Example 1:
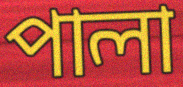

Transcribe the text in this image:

পালা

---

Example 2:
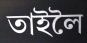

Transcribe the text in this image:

তাইলৈ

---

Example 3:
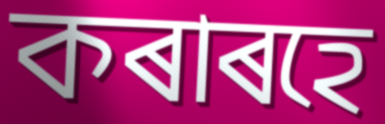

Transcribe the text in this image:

কৰাৰহে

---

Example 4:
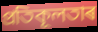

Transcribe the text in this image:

প্ৰতিকূলতাৰ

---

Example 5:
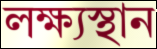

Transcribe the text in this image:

লক্ষ্যস্থান